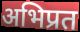
अभिप्रत